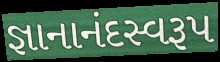
જ્ઞાનાનંદસ્વરૂપ